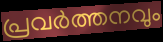
പ്രവർത്തനവും